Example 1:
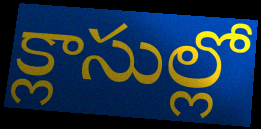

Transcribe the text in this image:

క్లాసుల్లో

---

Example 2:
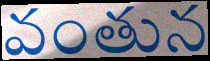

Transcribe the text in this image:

వంతున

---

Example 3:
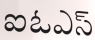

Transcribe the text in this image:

ఐఓఎస్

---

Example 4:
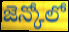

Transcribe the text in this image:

జెన్కోలో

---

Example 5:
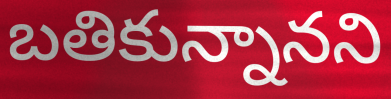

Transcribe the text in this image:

బతికున్నానని